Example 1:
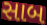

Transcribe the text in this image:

સાબ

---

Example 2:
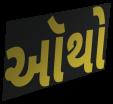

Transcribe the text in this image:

ઑથો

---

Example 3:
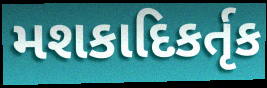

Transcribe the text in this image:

મશકાદિકર્તૃક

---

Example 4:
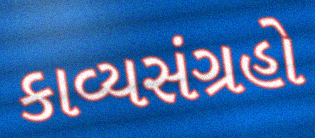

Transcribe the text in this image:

કાવ્યસંગ્રહો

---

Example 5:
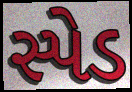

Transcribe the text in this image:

સ્પેડ